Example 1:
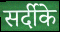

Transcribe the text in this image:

सर्दीके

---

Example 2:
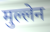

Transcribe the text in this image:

मुल्लेन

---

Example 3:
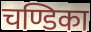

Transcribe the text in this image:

चण्डिका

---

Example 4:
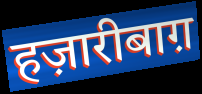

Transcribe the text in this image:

हज़ारीबाग़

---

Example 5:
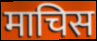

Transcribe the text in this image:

माचिस